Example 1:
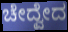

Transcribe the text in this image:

ಚೇದ್ವೇದ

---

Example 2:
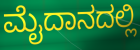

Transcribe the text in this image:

ಮೈದಾನದಲ್ಲಿ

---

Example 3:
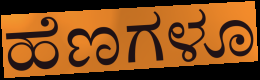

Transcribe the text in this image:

ಹೆಣಗಳೂ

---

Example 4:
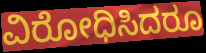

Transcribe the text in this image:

ವಿರೋಧಿಸಿದರೂ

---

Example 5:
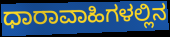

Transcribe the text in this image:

ಧಾರಾವಾಹಿಗಳಲ್ಲಿನ